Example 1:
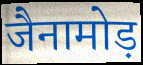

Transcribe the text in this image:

जैनामोड़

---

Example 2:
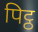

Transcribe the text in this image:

पिट्ठ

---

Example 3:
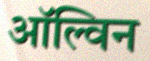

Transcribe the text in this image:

ऑल्विन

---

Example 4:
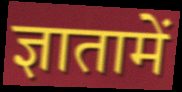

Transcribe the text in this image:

ज्ञातामें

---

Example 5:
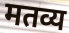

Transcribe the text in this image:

मतव्य